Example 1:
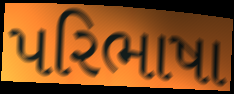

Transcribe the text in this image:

પરિભાષા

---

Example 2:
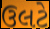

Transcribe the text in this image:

ઉલટે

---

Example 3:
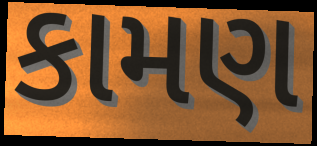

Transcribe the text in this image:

કામણ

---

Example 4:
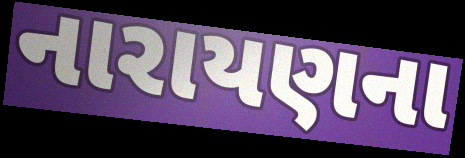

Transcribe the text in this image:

નારાયણના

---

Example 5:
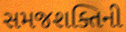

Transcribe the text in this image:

સમજશક્તિની